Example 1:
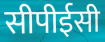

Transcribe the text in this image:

सीपीईसी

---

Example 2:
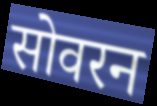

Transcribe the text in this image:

सोवरन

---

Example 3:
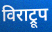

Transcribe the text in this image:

विराट्रूप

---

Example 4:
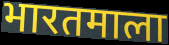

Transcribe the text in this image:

भारतमाला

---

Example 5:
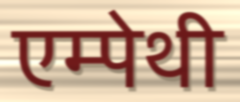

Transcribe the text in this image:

एम्पेथी